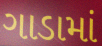
ગાડામાં